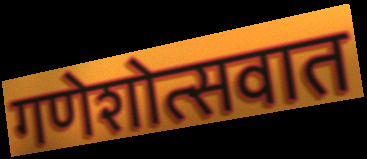
गणेशोत्सवात